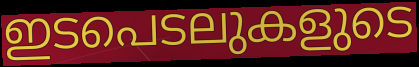
ഇടപെടലുകളുടെ